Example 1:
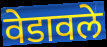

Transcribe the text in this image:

वेडावले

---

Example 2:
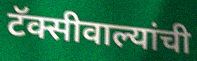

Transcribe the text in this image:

टॅक्सीवाल्यांची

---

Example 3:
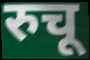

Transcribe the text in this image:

रुचू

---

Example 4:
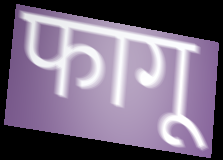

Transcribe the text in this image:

फागू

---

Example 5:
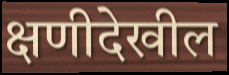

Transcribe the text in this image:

क्षणीदेखील